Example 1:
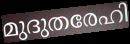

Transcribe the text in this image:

മുദുതരേഹി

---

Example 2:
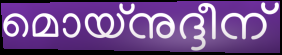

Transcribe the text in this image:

മൊയ്നുദ്ദീന്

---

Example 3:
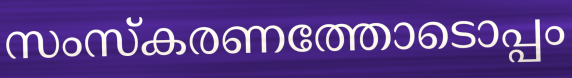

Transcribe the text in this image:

സംസ്കരണത്തോടൊപ്പം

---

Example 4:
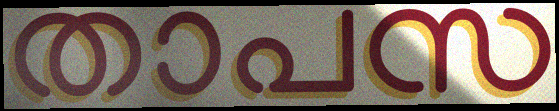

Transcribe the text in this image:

താപസ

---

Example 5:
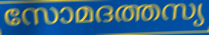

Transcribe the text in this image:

സോമദത്തസ്യ